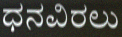
ಧನವಿರಲು